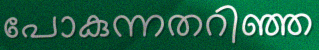
പോകുന്നതറിഞ്ഞ